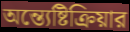
অন্ত্যেষ্টিক্রিয়ার